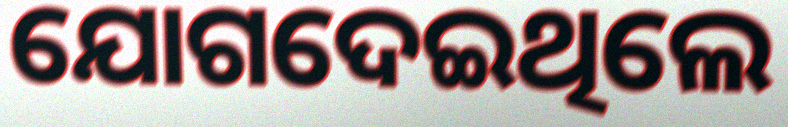
ଯୋଗଦେଇଥିଲେ